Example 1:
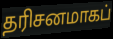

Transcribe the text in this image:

தரிசனமாகப்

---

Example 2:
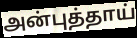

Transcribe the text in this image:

அன்புத்தாய்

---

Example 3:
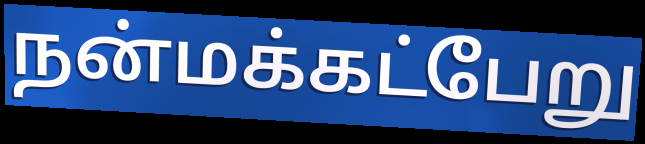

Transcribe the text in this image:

நன்மக்கட்பேறு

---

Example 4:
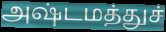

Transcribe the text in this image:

அஷ்டமத்துச்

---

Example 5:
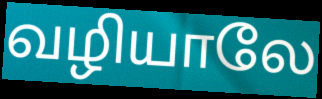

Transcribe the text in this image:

வழியாலே